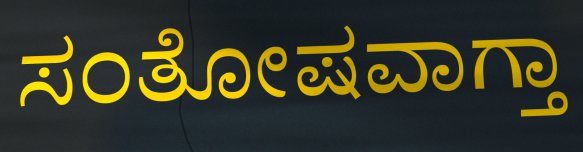
ಸಂತೋಷವಾಗ್ತಾ